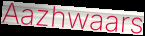
Aazhwaars